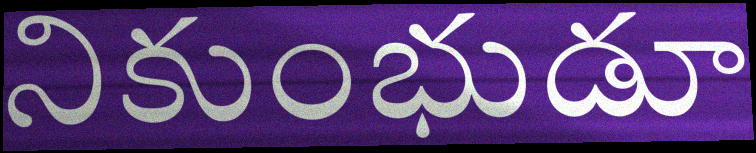
నికుంభుడూ